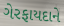
ગેરફાયદાને